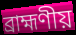
ব্রাহ্মণীয়